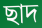
ছাদ